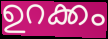
ഉറക്കം